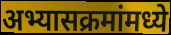
अभ्यासक्रमांमध्ये